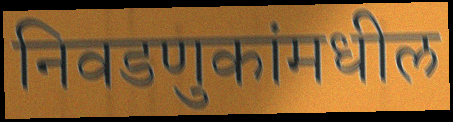
निवडणुकांमधील